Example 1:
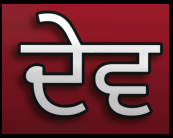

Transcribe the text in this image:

ਦੇਵ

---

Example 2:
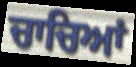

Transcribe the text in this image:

ਚਾਚਿਆਂ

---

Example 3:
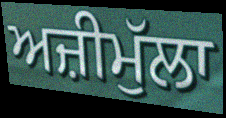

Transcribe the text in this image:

ਅਜ਼ੀਮੁੱਲਾ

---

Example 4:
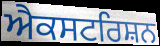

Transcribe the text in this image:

ਐਕਸਟਰਿਸ਼ਨ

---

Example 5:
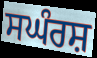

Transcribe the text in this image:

ਸਘੰਰਸ਼